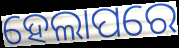
ହେଲାପରେ